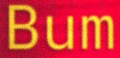
Bum